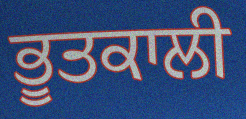
ਭੂਤਕਾਲੀ